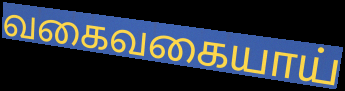
வகைவகையாய்